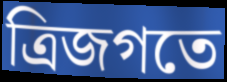
ত্রিজগতে